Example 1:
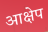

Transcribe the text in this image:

आक्षेप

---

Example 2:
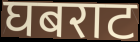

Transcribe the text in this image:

घबराट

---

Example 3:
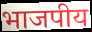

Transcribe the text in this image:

भाजपीय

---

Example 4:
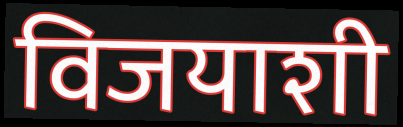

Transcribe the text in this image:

विजयाशी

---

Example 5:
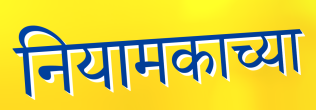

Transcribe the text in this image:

नियामकाच्या